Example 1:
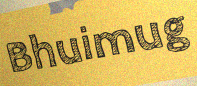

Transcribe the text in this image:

Bhuimug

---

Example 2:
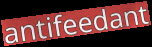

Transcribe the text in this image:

antifeedant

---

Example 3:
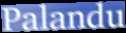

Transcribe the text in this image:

Palandu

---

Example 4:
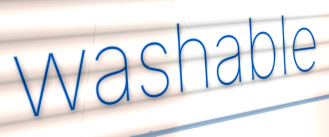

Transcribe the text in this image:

washable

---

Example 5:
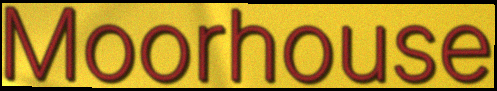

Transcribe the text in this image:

Moorhouse